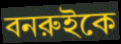
বনরুইকে